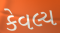
કેવલ્ય